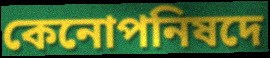
কেনোপনিষদে